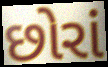
છોરાં